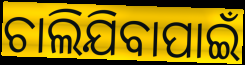
ଚାଲିଯିବାପାଇଁ